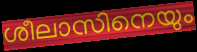
ശീലാസിനെയും